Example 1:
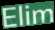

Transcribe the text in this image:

Elim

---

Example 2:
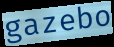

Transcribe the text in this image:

gazebo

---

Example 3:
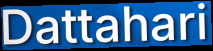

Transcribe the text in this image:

Dattahari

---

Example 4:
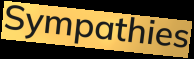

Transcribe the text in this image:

Sympathies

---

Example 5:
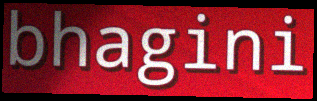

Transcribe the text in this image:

bhagini